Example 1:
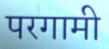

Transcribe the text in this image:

परगामी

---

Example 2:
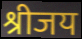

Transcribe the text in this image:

श्रीजय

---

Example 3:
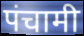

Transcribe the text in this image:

पंचामी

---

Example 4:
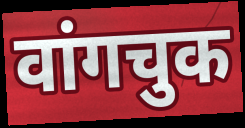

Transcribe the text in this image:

वांगचुक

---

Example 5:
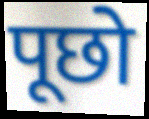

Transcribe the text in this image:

पूछो